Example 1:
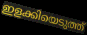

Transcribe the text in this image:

ഇളക്കിയെടുത്ത്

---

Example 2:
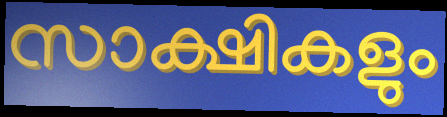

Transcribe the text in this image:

സാക്ഷികളും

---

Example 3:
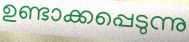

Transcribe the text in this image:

ഉണ്ടാക്കപ്പെടുന്നു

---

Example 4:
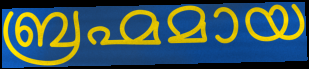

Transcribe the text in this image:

ബ്രഹ്മമായ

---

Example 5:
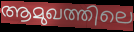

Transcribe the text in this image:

ആമുഖത്തിലെ